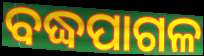
ବଦ୍ଧପାଗଳ